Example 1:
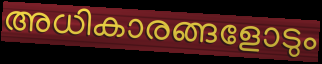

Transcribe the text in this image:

അധികാരങ്ങളോടും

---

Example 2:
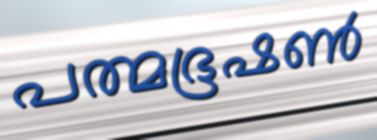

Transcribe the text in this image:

പത്മഭൂഷൺ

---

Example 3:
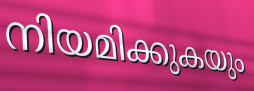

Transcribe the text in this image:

നിയമിക്കുകയും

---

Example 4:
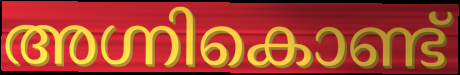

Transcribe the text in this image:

അഗ്നികൊണ്ട്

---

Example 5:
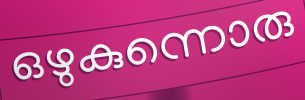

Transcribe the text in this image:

ഒഴുകുന്നൊരു